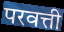
परवत्ती